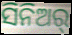
ସିନିଅର୍